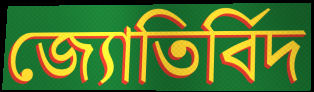
জ্যোতির্বিদ